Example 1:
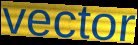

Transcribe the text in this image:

vector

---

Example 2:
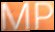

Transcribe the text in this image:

MP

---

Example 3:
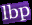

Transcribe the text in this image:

lbp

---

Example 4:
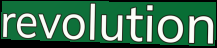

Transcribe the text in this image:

revolution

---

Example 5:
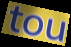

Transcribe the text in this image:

tou